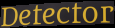
Detector